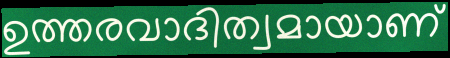
ഉത്തരവാദിത്വമായാണ്